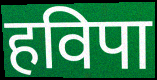
हविपा